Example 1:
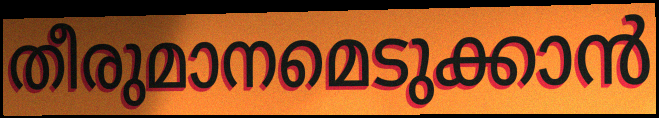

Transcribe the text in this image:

തീരുമാനമെടുക്കാൻ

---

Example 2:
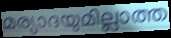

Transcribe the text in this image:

മര്യാദയുമില്ലാത്ത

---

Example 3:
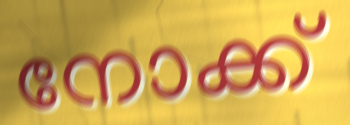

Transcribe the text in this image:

നോക്ക്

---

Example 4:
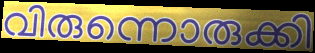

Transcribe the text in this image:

വിരുന്നൊരുക്കി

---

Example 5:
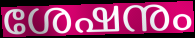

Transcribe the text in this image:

ശേഷനും